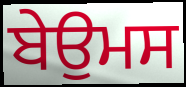
ਬੇਉਮਸ